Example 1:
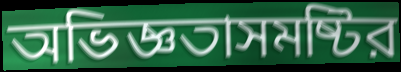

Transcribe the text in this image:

অভিজ্ঞতাসমষ্টির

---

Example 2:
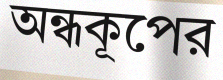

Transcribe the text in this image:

অন্ধকূপের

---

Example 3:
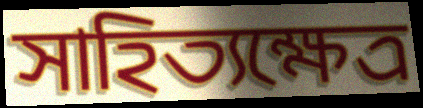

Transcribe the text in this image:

সাহিত্যক্ষেত্র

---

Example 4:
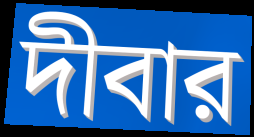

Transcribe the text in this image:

দীবার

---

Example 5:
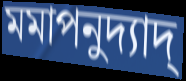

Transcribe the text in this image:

মমাপনুদ্যাদ্